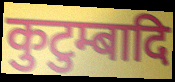
कुटुम्बादि